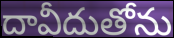
దావీదుతోను